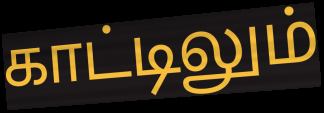
காட்டிலும்